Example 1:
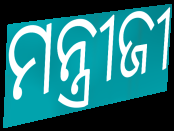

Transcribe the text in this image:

ମନ୍ତ୍ରୀଜୀ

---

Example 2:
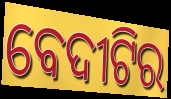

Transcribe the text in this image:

ବେଦୀଟିର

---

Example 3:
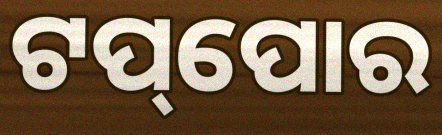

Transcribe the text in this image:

ଟପ୍‌ପୋର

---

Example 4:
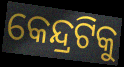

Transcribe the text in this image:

କେନ୍ଦ୍ରଟିକୁ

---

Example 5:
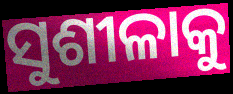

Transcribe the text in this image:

ସୁଶୀଳାକୁ